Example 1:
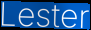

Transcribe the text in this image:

Lester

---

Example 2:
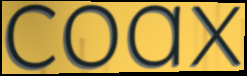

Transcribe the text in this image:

coax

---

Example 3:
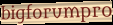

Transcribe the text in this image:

bigforumpro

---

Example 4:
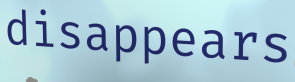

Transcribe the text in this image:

disappears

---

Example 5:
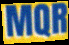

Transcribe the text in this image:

MQR